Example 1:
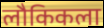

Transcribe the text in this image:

लौकिकला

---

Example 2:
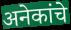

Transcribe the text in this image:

अनेकांचे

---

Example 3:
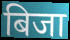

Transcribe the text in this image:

बिजा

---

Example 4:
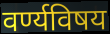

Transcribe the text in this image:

वर्ण्यविषय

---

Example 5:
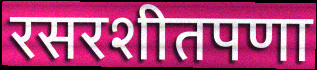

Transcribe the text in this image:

रसरशीतपणा